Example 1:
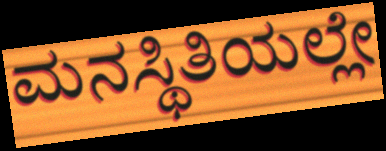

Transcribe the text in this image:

ಮನಸ್ಥಿತಿಯಲ್ಲೇ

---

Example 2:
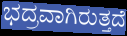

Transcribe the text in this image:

ಭದ್ರವಾಗಿರುತ್ತದೆ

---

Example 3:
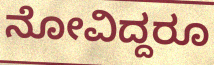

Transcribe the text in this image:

ನೋವಿದ್ದರೂ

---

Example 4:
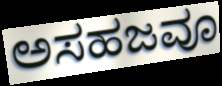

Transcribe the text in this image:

ಅಸಹಜವೂ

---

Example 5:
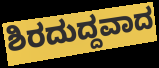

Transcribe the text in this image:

ಶಿರದುದ್ದವಾದ